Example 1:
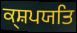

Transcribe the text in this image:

ਕ੍ਸ਼ਪਯਤਿ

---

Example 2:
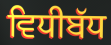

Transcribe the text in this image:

ਵਿਧੀਬੱਧ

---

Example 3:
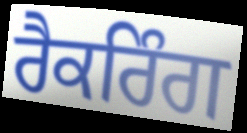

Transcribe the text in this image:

ਰੈਕਰਿੰਗ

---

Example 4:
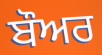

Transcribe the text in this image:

ਬੌਅਰ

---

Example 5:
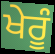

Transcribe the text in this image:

ਖੇਰੂੰ